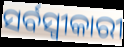
ସର୍ବସ୍ଵୀକାରୀ